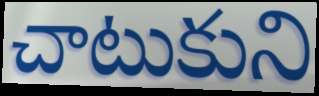
చాటుకుని